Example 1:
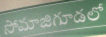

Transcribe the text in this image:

సోమాజిగూడలో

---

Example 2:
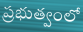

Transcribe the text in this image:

ప్రభుత్వంలో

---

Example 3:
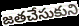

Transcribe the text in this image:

జతచేసుకుని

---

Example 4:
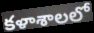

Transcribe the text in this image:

కళాశాలలో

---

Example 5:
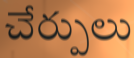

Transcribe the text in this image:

చేర్పులు